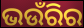
ଭଉଁରିର